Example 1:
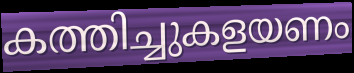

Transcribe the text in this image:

കത്തിച്ചുകളയണം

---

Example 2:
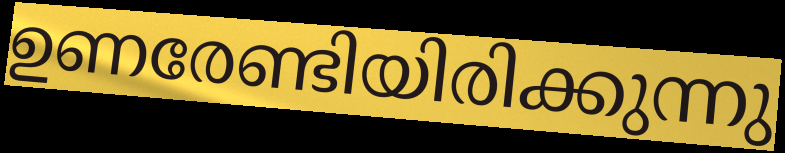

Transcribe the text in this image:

ഉണരേണ്ടിയിരിക്കുന്നു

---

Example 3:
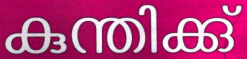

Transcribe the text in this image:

കുന്തിക്കു്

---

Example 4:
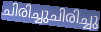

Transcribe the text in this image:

ചിരിച്ചുചിരിച്ചു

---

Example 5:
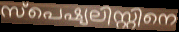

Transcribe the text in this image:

സ്പെഷ്യലിസ്റ്റിനെ